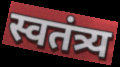
स्वतंत्र्य